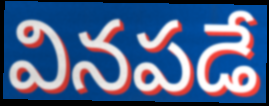
వినపడే